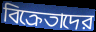
বিক্রেতাদের